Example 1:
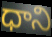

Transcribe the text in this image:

ధాని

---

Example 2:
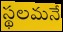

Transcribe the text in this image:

స్థలమనే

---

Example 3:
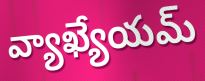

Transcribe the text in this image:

వ్యాఖ్యేయమ్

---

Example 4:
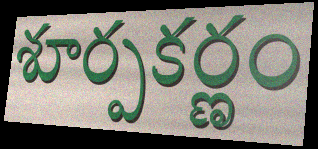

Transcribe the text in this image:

శూర్పకర్ణం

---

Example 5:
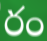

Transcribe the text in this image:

రం